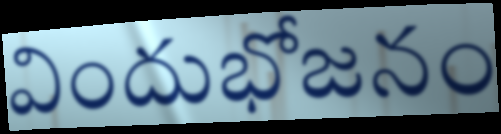
విందుభోజనం